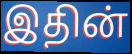
இதின்